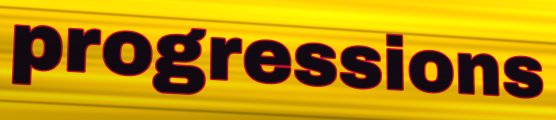
progressions